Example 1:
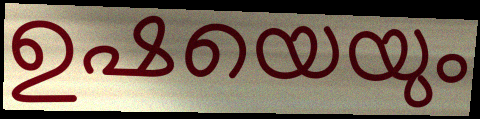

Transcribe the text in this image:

ഉഷയെയും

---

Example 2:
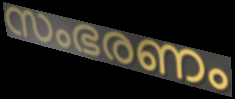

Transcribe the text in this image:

സംഭരണം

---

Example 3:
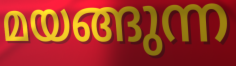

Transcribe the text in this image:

മയങ്ങുന്ന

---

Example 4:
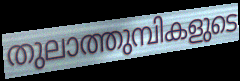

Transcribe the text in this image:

തുലാത്തുമ്പികളുടെ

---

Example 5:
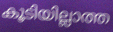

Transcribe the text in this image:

കൂടിയില്ലാത്ത